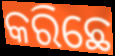
କରିଛେ